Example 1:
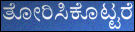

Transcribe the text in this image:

ತೋರಿಸಿಕೊಟ್ಟರೆ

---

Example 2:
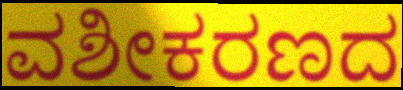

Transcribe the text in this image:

ವಶೀಕರಣದ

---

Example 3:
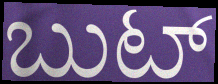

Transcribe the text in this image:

ಬುಟ್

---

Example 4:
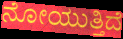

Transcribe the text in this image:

ನೋಯುತ್ತಿದೆ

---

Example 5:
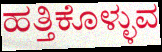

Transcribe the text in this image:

ಹತ್ತಿಕೊಳ್ಳುವ